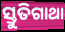
ସ୍ତୁତିଗାଥା